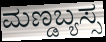
ಮಣ್ಡಬ್ಯಸ್ಸ